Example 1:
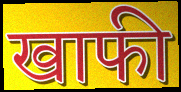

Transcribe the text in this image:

खाफी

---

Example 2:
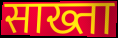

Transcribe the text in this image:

साख्ता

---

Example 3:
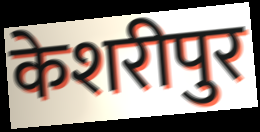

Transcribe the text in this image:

केशरीपुर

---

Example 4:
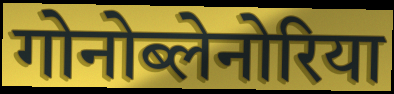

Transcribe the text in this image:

गोनोब्लेनोरिया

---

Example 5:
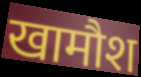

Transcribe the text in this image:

खामौश